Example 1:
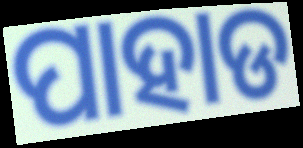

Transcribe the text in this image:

ପାହାଡ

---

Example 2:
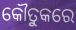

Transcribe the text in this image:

କୌତୁକରେ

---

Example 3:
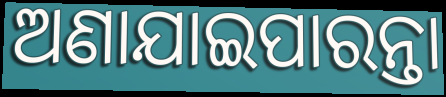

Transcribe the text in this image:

ଅଣାଯାଇପାରନ୍ତା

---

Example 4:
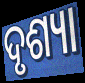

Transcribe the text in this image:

ଦୃଶ୍ୟା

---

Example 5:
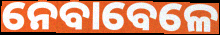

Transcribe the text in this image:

ନେବାବେଳେ